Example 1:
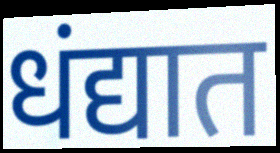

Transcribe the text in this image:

धंद्यात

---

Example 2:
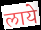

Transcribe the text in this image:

लाये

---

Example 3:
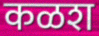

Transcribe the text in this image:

कळश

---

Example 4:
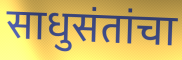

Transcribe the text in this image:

साधुसंतांचा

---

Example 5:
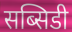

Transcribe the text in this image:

सब्सिडी